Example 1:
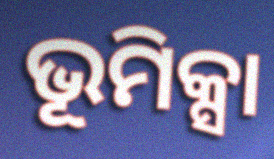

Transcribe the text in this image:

ଭୂମିକ୍ସା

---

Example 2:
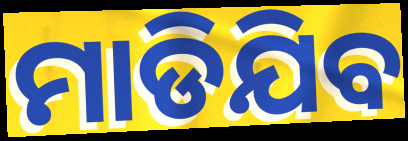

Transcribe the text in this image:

ମାଡିଯିବ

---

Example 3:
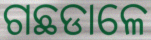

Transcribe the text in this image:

ଗଛଡାଳେ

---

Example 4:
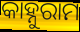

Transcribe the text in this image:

କାହ୍ନୁରାମ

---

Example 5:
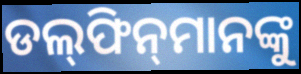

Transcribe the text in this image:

ଡଲ୍‍ଫିନ୍‍ମାନଙ୍କୁ